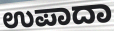
ಉಪಾದಾ